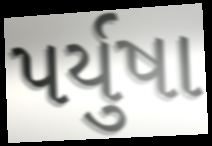
પર્યુષા